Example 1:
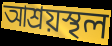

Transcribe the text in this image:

আশ্ৰয়স্থল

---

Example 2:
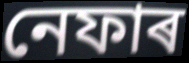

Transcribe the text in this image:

নেফাৰ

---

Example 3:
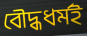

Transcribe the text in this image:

বৌদ্ধধৰ্মই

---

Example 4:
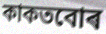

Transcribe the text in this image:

কাকতবোৰ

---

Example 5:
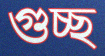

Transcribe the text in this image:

গুচ্ছ